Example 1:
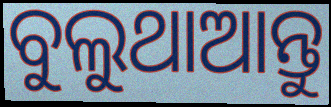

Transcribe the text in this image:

ବୁଲୁଥାଆନ୍ତୁ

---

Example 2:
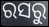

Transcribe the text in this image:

ରସରୁ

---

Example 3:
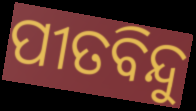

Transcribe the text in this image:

ପୀତବିନ୍ଦୁ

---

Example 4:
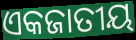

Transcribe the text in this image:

ଏକଜାତୀୟ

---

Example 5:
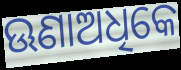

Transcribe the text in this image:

ଊଣାଅଧିକେ